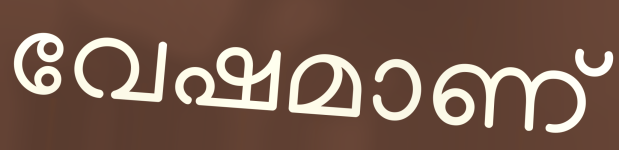
വേഷമാണ്